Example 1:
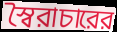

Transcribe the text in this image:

স্বৈরাচারের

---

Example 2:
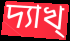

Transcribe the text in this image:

দ্যাখ্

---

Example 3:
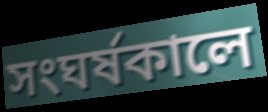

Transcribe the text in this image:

সংঘর্ষকালে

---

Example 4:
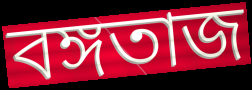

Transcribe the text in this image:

বঙ্গতাজ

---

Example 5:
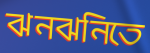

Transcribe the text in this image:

ঝনঝনিতে